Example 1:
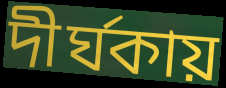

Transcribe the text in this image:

দীর্ঘকায়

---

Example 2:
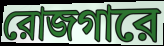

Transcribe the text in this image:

রোজগারে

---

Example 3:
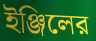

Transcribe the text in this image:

ইঞ্জিলের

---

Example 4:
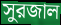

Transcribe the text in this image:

সুরজাল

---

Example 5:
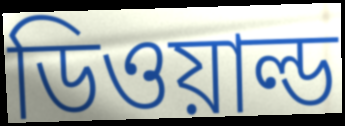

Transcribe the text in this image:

ডিওয়াল্ড